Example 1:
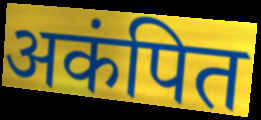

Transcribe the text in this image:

अकंपित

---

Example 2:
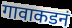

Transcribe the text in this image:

गावाकडनं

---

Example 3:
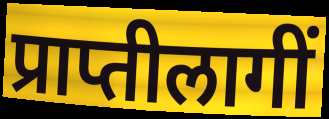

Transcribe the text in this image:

प्राप्तीलागीं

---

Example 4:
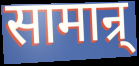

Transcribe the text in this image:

सामान्र्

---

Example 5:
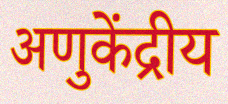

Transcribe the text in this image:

अणुकेंद्रीय